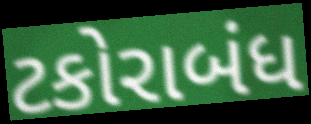
ટકોરાબંધ